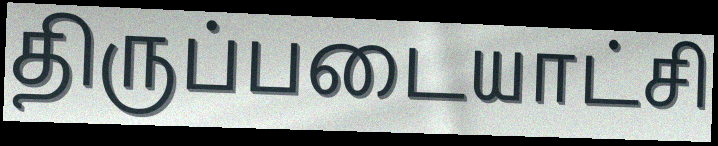
திருப்படையாட்சி